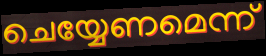
ചെയ്യേണമെന്ന്